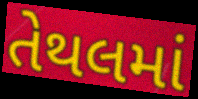
તેથલમાં